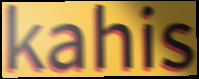
kahis